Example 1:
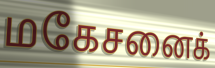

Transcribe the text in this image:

மகேசனைக்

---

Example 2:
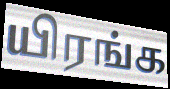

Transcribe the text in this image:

யிரங்க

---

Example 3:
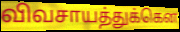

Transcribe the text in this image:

விவசாயத்துக்கென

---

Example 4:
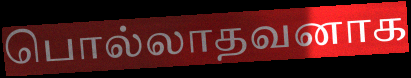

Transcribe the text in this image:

பொல்லாதவனாக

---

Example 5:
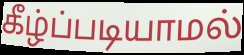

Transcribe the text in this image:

கீழ்ப்படியாமல்